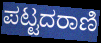
ಪಟ್ಟದರಾಣಿ